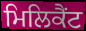
ਮਿਲਿਕੈਂਟ